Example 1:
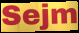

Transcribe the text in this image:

Sejm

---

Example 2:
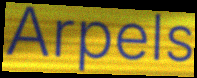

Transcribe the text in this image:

Arpels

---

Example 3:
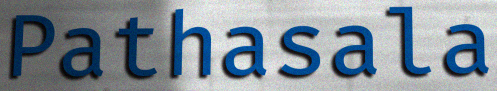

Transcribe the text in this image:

Pathasala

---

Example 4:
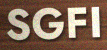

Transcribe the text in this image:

SGFI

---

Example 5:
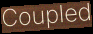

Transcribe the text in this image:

Coupled